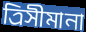
ত্রিসীমানা